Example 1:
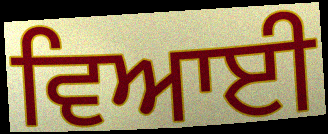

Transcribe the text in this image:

ਵਿਆਈ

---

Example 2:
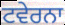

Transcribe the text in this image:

ਟਵੇਰਨਾ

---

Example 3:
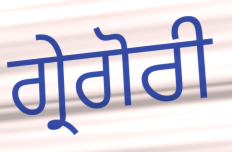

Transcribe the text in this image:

ਗ੍ਰੇਗੋਰੀ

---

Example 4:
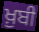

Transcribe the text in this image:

ਖ਼ੁਬੀ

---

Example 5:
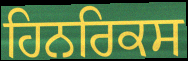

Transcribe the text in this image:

ਹਿਨਰਿਕਸ